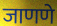
जाणणे